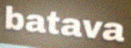
batava